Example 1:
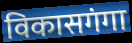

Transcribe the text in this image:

विकासगंगा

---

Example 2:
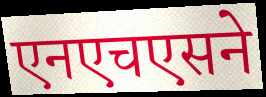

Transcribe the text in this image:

एनएचएसने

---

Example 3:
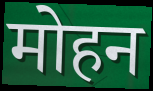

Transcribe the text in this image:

मोहन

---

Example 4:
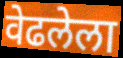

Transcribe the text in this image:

वेढलेला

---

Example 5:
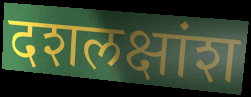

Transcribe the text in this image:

दशलक्षांश